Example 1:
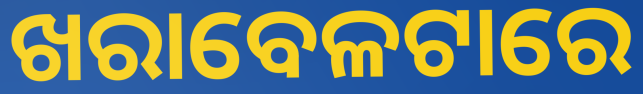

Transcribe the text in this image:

ଖରାବେଳଟାରେ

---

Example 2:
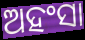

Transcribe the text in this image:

ଅହଂସା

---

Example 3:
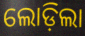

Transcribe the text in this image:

ଲୋଡ଼ିଲା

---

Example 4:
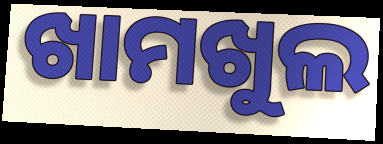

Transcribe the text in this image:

ଖାମଖୁଲ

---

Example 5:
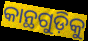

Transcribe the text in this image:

କାନ୍ଥଗୁଡ଼ିକୁ